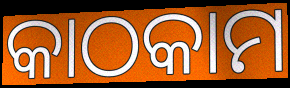
କାଠକାମ